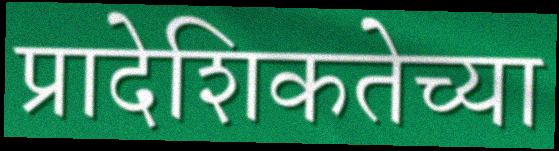
प्रादेशिकतेच्या